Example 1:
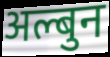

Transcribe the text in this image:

अल्बुन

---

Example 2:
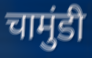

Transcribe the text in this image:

चामुंडी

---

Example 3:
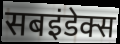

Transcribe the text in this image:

सबइंडेक्स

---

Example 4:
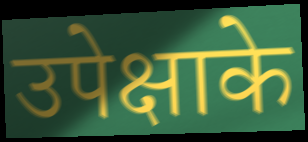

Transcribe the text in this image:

उपेक्षाके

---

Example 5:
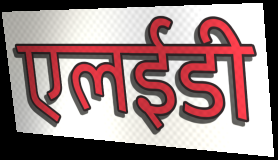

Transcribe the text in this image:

एलईडी